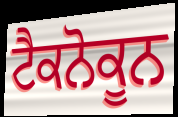
ਟੈਕਨੋਕੂਨ